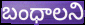
బంధాలని